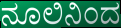
ನೂಲಿನಿಂದ